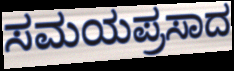
ಸಮಯಪ್ರಸಾದ